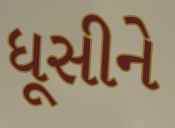
ધૂસીને